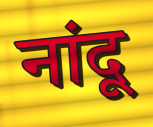
नांदू